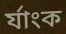
র্যাংক